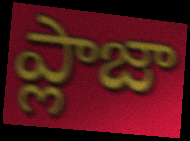
ప్లాజా